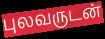
புலவருடன்